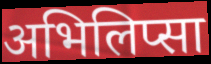
अभिलिप्सा